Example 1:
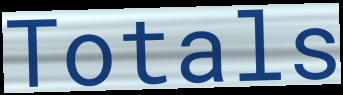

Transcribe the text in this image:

Totals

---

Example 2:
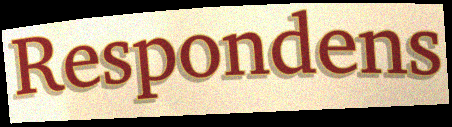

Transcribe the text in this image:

Respondens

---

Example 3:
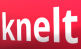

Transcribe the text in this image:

knelt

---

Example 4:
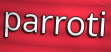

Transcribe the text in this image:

parroti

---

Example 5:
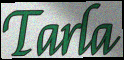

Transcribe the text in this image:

Tarla